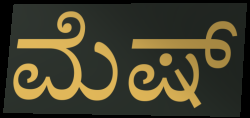
ಮೆಷ್